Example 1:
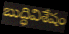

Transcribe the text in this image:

బుద్ధివిశేషం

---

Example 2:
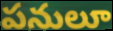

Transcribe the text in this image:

పనులూ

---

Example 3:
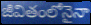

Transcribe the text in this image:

జీవితంలోనైనా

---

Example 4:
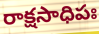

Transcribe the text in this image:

రాక్షసాధిపః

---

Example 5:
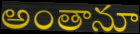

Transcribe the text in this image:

అంతానూ